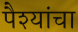
पैश्यांचा